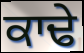
ਕਾਢੇ